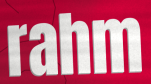
rahm